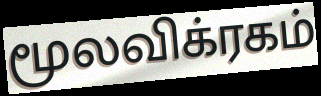
மூலவிக்ரகம்